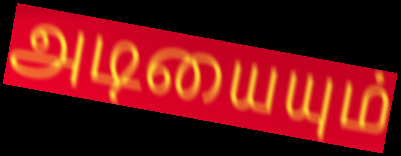
அடியையும்